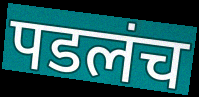
पडलंच